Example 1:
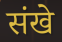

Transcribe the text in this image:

संखे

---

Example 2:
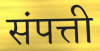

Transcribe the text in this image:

संपत्ती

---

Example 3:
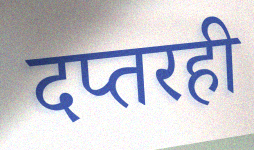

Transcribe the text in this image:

दप्तरही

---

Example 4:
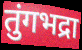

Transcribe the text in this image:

तुंगभद्रा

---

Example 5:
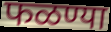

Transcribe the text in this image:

फळण्या